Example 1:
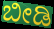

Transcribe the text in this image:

ಬೀಡಿ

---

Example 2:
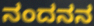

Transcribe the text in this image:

ನಂದನನ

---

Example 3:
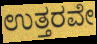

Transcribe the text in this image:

ಉತ್ತರವೇ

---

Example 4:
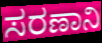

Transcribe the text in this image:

ಸರಣಾನಿ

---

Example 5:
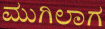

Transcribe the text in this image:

ಮುಗಿಲಾಗ